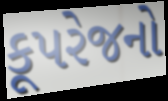
કૂપરેજનો